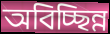
অবিচ্ছিন্ন